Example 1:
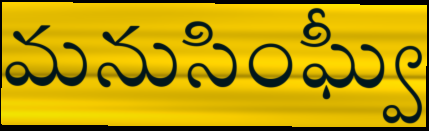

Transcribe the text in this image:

మనుసింఘ్వీ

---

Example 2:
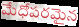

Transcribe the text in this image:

మేధోపరమైన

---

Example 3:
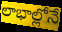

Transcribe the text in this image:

లాభాల్లోనే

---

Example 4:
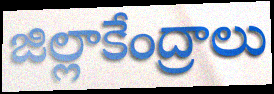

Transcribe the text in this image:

జిల్లాకేంద్రాలు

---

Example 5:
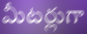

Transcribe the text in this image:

మీటర్లుగా